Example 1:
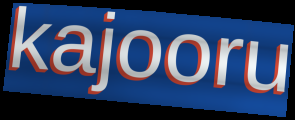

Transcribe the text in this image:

kajooru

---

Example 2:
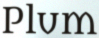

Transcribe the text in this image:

Plum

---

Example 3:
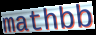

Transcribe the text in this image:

mathbb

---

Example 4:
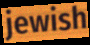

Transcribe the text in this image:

jewish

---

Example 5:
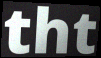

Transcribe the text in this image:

tht